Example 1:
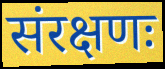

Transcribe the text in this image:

संरक्षणः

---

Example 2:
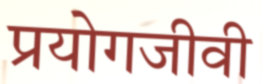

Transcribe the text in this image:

प्रयोगजीवी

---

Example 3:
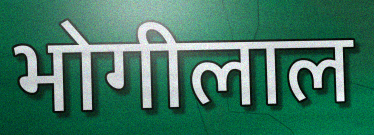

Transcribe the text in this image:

भोगीलाल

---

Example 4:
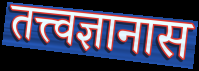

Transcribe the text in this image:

तत्त्वज्ञानास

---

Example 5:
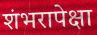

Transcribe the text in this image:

शंभरापेक्षा